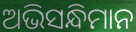
ଅଭିସନ୍ଧିମାନ